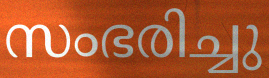
സംഭരിച്ചു